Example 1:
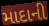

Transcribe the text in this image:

માદાની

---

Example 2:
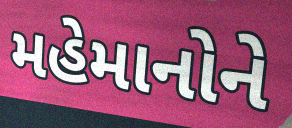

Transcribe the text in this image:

મહેમાનોને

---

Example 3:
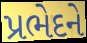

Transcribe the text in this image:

પ્રભેદને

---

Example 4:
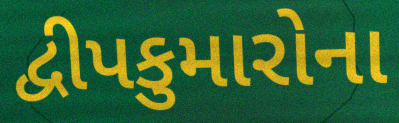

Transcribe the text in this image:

દ્વીપકુમારોના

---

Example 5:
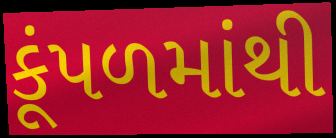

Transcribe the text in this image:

કૂંપળમાંથી